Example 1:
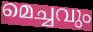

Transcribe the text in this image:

മെച്ചവും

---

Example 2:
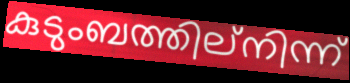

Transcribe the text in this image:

കുടുംബത്തില്നിന്ന്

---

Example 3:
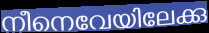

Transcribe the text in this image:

നീനെവേയിലേക്കു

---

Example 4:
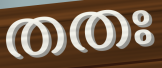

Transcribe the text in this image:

തതഃ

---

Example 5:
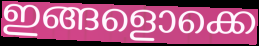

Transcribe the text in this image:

ഇങ്ങളൊക്കെ